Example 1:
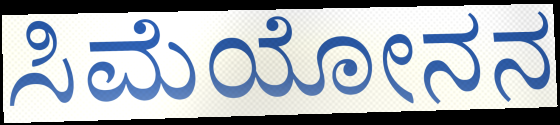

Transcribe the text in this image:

ಸಿಮೆಯೋನನ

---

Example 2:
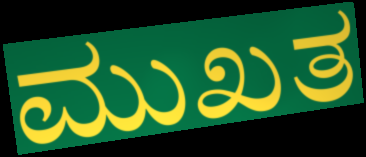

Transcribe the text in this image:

ಮುಖತ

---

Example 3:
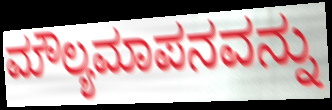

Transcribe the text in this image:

ಮೌಲ್ಯಮಾಪನವನ್ನು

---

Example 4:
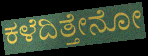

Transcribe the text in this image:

ಕಳೆದಿತ್ತೇನೋ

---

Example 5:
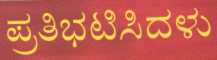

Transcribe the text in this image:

ಪ್ರತಿಭಟಿಸಿದಳು